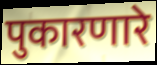
पुकारणारे